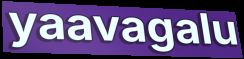
yaavagalu